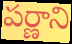
పర్ణాని